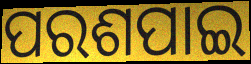
ପରଶପାଇ